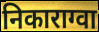
निकाराग्वा